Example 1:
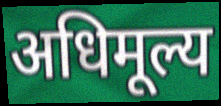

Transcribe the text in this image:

अधिमूल्य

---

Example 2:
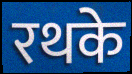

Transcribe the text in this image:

रथके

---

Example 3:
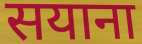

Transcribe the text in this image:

सयाना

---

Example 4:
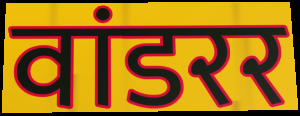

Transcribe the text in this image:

वांडरर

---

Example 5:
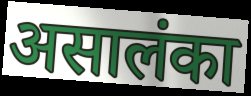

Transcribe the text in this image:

असालंका